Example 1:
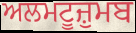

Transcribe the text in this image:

ਅਲਮਟੂਜ਼ੁਮਬ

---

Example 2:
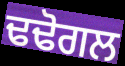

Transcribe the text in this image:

ਢਢੋਗਲ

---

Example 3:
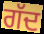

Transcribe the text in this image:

ਗੱਦ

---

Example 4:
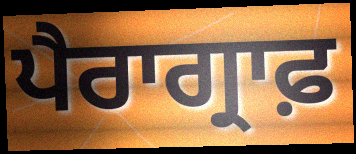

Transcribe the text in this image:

ਪੈਰਾਗ੍ਰਾਫ਼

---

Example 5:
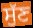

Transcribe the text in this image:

ਸੁੱਣ